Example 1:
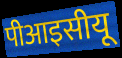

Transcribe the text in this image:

पीआइसीयू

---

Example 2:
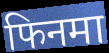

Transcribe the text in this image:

फिनमा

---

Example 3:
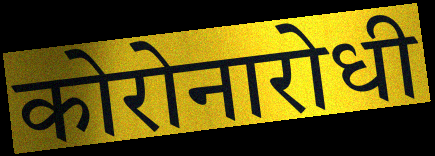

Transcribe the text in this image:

कोरोनारोधी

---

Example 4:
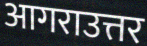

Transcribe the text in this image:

आगराउत्तर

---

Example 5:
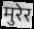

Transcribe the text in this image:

मुरेर